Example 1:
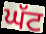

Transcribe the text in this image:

ਘੱਟ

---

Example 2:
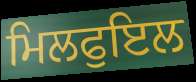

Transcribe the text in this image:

ਮਿਲਫੁਇਲ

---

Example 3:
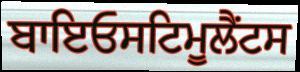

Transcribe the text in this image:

ਬਾਇਓਸਟਿਮੂਲੈਂਟਸ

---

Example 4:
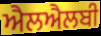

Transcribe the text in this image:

ਐਲਐਲਬੀ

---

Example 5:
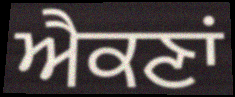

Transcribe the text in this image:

ਐਕਣਾਂ